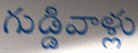
గుడ్డివాళ్లు